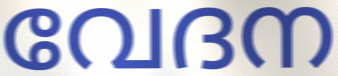
വേദന